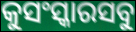
କୁସଂସ୍କାରସବୁ